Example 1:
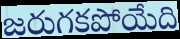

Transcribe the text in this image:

జరుగకపోయేది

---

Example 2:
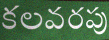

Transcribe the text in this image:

కలవరపు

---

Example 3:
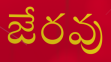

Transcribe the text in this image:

జేరవు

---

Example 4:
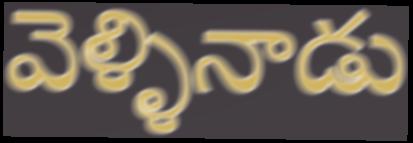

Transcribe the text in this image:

వెళ్ళినాడు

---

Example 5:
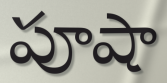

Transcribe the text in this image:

పూషా